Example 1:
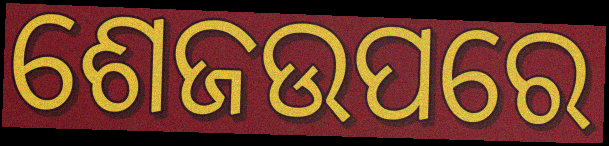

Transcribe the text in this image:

ଶେଜଉପରେ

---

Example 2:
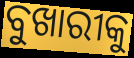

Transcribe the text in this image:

ବୁଖାରୀକୁ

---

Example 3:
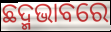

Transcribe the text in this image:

ଛଦ୍ମଭାବରେ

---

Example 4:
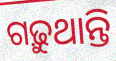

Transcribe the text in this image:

ଗଢ଼ୁଥାନ୍ତି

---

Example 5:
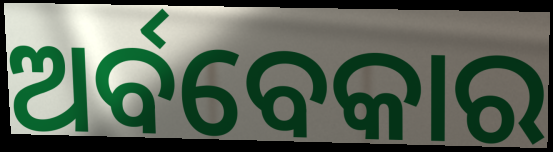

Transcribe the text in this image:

ଅର୍ବବେକାର